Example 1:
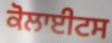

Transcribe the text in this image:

ਕੋਲਾਈਟਸ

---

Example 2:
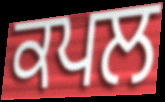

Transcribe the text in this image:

ਕਪਲ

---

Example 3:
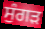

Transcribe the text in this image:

ਸੁੰਗੜ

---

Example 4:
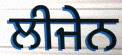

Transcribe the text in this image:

ਲੀਜੇਨ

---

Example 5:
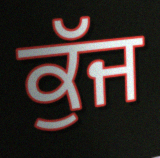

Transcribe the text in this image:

ਕੁੱਜ